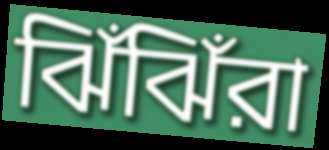
ঝিঁঝিঁরা